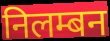
निलम्‍बन